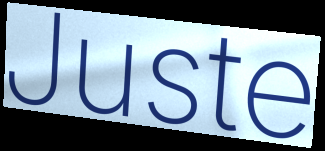
Juste